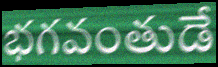
భగవంతుడే